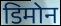
डिमोन